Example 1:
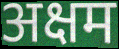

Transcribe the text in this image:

अक्षम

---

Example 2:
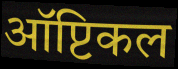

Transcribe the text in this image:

ऑप्टिकल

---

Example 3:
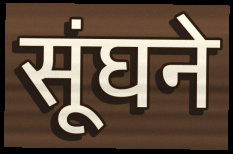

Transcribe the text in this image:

सूंघने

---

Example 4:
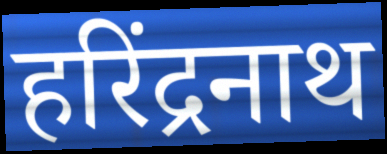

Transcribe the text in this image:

हरिंद्रनाथ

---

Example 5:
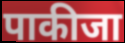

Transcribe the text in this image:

पाकीजा